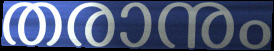
തരാനും